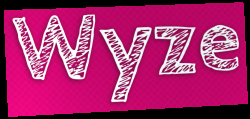
Wyze